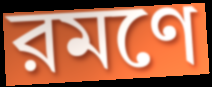
রমণে